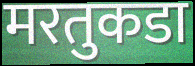
मरतुकडा